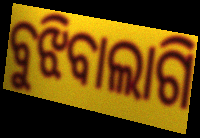
ବୁଝିବାଲାଗି